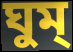
ঘুম্